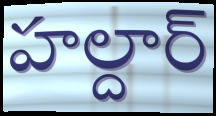
హల్దార్